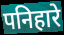
पनिहारे